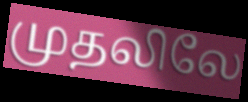
முதலிலே